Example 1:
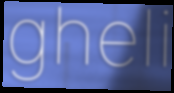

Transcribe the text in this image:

gheli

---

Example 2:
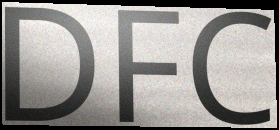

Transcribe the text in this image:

DFC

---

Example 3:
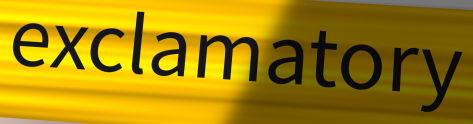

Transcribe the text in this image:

exclamatory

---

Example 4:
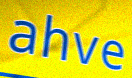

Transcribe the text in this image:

ahve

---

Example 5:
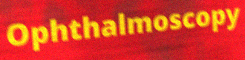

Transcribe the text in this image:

Ophthalmoscopy